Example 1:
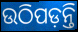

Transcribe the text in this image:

ଉଠିପଡ଼ନ୍ତି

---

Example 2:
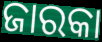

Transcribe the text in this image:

ଜାରକା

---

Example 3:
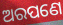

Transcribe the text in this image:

ଅରପଣେ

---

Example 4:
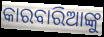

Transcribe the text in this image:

କାରବାରିଆଙ୍କୁ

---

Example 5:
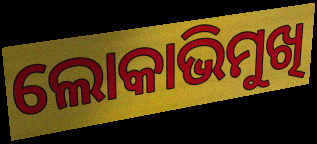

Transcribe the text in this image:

ଲୋକାଭିମୁଖି